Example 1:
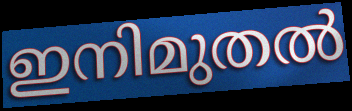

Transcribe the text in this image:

ഇനിമുതൽ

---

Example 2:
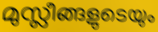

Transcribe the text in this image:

മുസ്ലീങ്ങളുടെയും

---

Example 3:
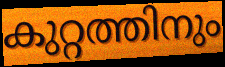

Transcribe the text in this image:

കുറ്റത്തിനും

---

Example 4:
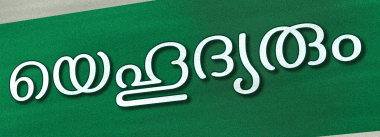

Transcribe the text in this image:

യെഹൂദ്യരും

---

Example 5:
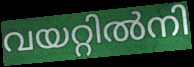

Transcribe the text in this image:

വയറ്റിൽനി